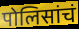
पोलिसांचं